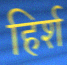
हिर्श